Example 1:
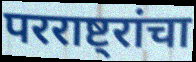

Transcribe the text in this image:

परराष्ट्रांचा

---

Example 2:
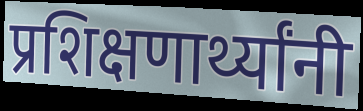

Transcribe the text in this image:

प्रशिक्षणार्थ्यांनी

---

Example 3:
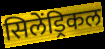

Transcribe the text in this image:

सिलेंड्रिकल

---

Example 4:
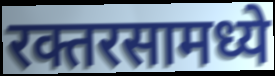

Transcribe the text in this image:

रक्तरसामध्ये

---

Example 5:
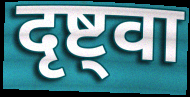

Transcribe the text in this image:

दृष्ट्वा